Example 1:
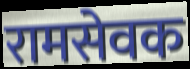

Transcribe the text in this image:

रामसेवक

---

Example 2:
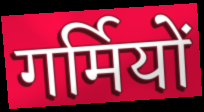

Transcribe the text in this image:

गर्मियों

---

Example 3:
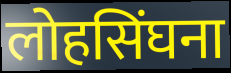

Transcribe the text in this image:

लोहसिंघना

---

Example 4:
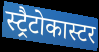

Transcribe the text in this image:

स्ट्रैटोकास्टर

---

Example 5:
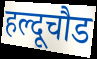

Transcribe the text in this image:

हल्दूचौड